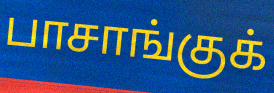
பாசாங்குக்